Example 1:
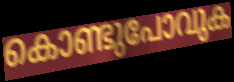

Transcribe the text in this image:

കൊണ്ടുപോവുക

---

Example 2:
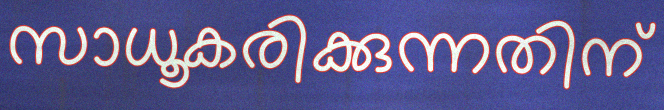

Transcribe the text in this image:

സാധൂകരിക്കുന്നതിന്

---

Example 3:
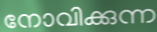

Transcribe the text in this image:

നോവിക്കുന്ന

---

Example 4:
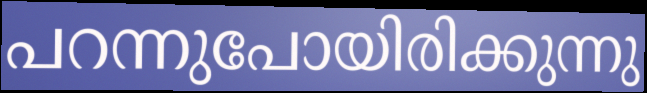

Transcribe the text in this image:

പറന്നുപോയിരിക്കുന്നു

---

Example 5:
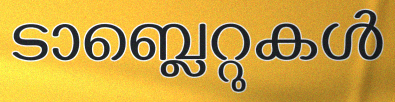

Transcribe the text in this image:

ടാബ്ലെറ്റുകൾ